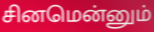
சினமென்னும்